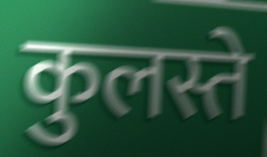
कुलस्ते